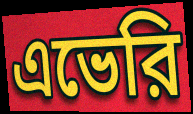
এভেরি